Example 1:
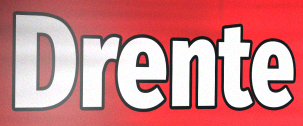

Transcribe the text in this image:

Drente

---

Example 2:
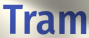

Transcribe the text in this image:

Tram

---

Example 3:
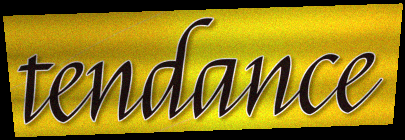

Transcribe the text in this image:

tendance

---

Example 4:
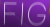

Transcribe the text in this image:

FIG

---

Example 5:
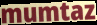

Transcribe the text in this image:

mumtaz